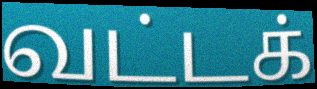
வட்டக்